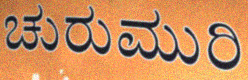
ಚುರುಮುರಿ